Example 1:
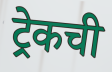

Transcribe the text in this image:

ट्रेकची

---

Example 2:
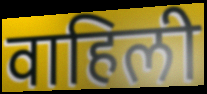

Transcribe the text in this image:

वाहिली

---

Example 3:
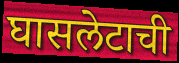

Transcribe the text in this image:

घासलेटाची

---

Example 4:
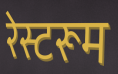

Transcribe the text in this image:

रेस्टरूम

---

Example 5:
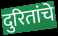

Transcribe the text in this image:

दुरितांचे